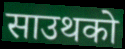
साउथको